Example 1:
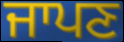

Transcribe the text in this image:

ਜਾਪਣ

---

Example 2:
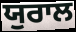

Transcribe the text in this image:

ਯੁਰਾਲ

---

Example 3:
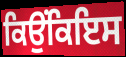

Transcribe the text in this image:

ਕਿਉਂਕਿਇਸ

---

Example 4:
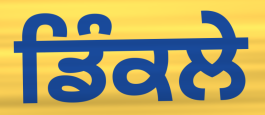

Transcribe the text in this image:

ਡਿੰਕਲੇ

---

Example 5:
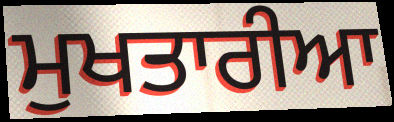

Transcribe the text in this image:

ਮੁਖਤਾਰੀਆ